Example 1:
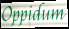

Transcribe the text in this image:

Oppidum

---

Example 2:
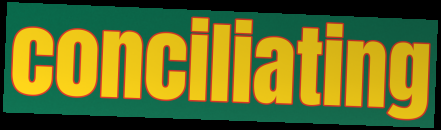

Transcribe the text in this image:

conciliating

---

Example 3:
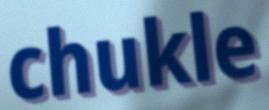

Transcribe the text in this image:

chukle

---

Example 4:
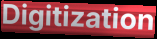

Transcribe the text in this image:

Digitization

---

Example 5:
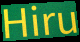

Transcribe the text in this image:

Hiru